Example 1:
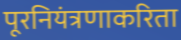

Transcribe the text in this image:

पूरनियंत्रणाकरिता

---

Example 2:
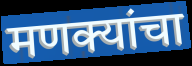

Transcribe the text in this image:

मणक्यांचा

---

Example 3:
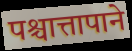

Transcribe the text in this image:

पश्चात्तापाने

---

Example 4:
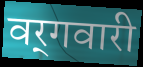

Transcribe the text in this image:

वर्गवारी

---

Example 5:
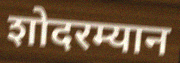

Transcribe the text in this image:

शोदरम्यान